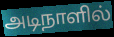
அடிநாளில்